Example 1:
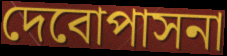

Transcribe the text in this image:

দেবোপাসনা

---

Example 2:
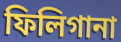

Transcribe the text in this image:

ফিলিগানা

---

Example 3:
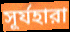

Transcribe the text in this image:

সূর্যহারা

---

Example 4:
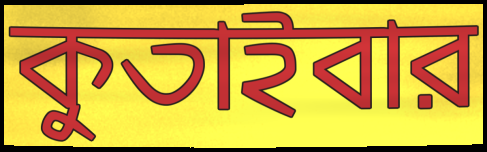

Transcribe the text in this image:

কুতাইবার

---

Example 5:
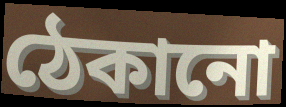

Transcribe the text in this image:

ঠেকানো